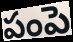
పంపె